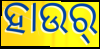
ହାଉର୍